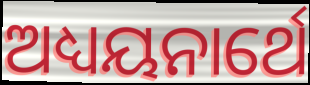
ଅଧ୍ୟୟନାର୍ଥେ